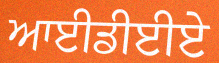
ਆਈਡੀਈਏ